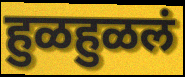
हुळहुळलं